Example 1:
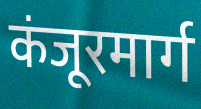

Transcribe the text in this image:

कंजूरमार्ग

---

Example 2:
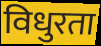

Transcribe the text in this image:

विधुरता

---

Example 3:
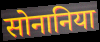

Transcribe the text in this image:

सोनानिया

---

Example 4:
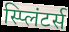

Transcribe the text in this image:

स्प्लिंटर्स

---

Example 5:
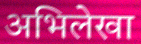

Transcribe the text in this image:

अभिलेखा